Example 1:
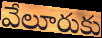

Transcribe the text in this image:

వేలూరుకు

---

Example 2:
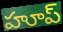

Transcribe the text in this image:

హూప్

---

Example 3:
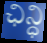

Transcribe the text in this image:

ఛిన్ధి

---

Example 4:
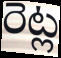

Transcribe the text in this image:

రెట్ల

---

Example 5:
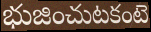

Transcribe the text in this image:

భుజించుటకంటె